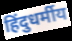
हिंदुधर्मीय